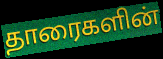
தாரைகளின்